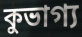
কুভাগ্য